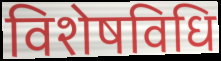
विशेषविधि